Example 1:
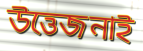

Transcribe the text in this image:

উত্তেজনাই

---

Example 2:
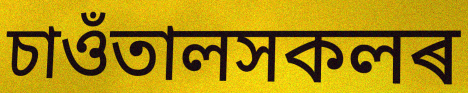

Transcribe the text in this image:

চাওঁতালসকলৰ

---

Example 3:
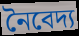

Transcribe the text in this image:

নৈবেদ্য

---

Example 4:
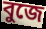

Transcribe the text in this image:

বুজে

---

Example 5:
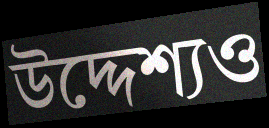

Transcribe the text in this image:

উদ্দেশ্যও